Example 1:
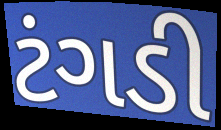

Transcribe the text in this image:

ટંગડી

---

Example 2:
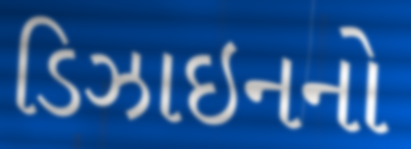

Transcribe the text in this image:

ડિઝાઇનનો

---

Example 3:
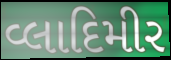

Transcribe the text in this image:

વ્લાદિમીર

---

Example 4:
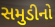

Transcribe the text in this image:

સમુડીનો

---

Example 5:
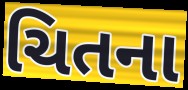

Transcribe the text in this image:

ચિતના